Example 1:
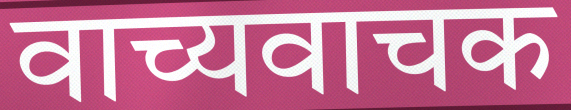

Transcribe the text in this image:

वाच्यवाचक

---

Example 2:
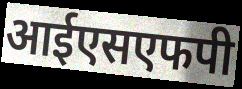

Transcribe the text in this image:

आईएसएफपी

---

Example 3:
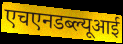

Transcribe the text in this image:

एचएनडब्ल्यूआई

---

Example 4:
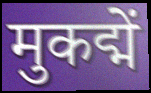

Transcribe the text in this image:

मुकद्में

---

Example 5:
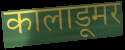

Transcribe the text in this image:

कालाडूमर